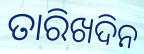
ତାରିଖଦିନ